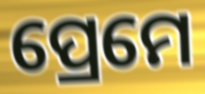
ପ୍ରେମେ